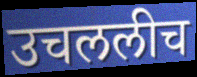
उचललीच